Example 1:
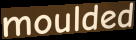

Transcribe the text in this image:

moulded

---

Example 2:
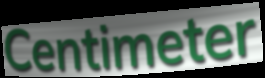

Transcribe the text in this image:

Centimeter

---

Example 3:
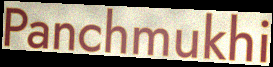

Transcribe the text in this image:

Panchmukhi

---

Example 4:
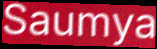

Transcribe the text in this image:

Saumya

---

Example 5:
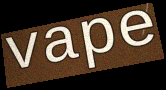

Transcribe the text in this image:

vape